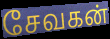
சேவகன்